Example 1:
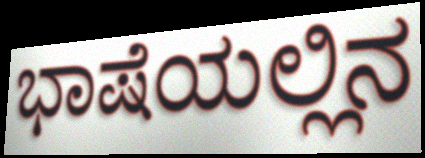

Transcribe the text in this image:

ಭಾಷೆಯಲ್ಲಿನ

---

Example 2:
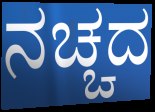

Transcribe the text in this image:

ನಚ್ಚದ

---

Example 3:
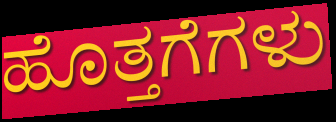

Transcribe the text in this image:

ಹೊತ್ತಗೆಗಳು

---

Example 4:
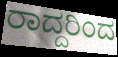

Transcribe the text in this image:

ರಾದ್ದರಿಂದ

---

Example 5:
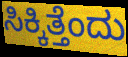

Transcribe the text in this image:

ಸಿಕ್ಕಿತ್ತೆಂದು